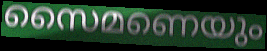
സൈമണെയും